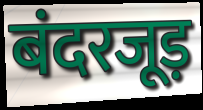
बंदरजूड़